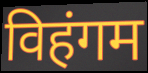
विहंगम